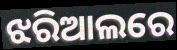
ଝରିଆଲରେ